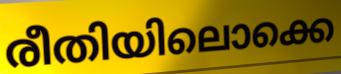
രീതിയിലൊക്കെ